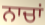
ਨਾਚਾਂ